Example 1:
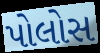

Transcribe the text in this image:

પોલોસ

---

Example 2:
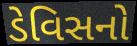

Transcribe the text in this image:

ડેવિસનો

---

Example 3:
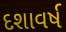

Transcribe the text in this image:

દશાવર્ષ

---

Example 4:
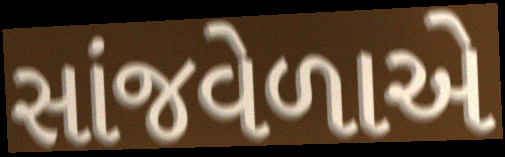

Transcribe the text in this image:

સાંજવેળાએ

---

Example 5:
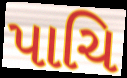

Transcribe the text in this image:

પાચિ